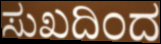
ಸುಖದಿಂದ